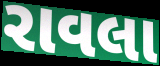
રાવલા